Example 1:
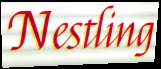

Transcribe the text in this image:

Nestling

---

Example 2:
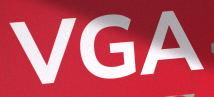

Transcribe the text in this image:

VGA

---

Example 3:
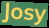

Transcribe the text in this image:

Josy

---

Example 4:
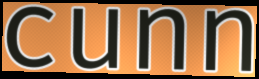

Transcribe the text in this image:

cunn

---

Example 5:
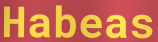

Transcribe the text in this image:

Habeas